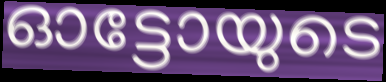
ഓട്ടോയുടെ